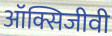
ऑक्सिजीवी